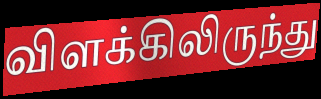
விளக்கிலிருந்து